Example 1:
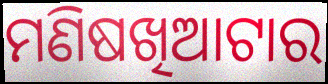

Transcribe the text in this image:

ମଣିଷଖିଆଟାର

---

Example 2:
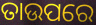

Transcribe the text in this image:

ତାଉପରେ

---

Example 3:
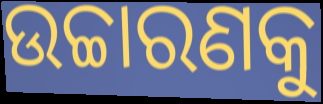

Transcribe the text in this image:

ଉଚ୍ଚାରଣକୁ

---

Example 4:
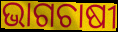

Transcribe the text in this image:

ଭାଗଚାଷୀ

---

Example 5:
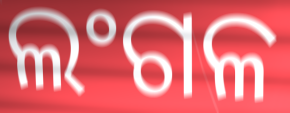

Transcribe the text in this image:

ଲଂଗଳ